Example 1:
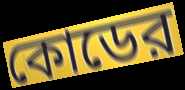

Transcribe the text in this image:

কোডের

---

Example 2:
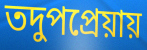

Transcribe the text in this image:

তদুপপ্রেয়ায়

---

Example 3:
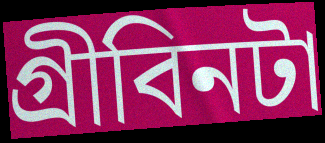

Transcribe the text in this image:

গ্রীবিনটা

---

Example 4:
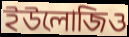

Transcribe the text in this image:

ইউলোজিও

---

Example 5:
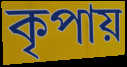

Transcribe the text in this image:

কৃপায়